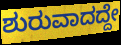
ಶುರುವಾದದ್ದೇ